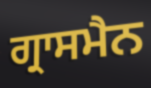
ਗ੍ਰਾਸਮੈਨ